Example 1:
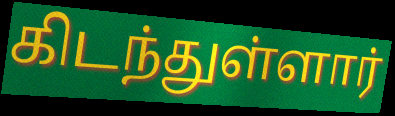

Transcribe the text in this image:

கிடந்துள்ளார்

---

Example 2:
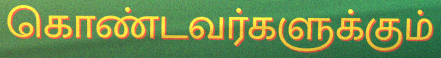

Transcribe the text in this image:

கொண்டவர்களுக்கும்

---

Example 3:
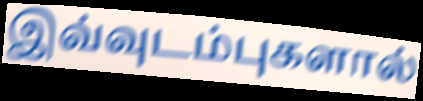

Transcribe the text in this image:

இவ்வுடம்புகளால்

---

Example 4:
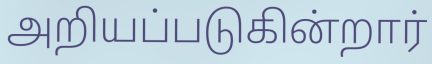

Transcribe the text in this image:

அறியப்படுகின்றார்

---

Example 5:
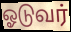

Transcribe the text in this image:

ஓடுவர்